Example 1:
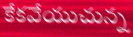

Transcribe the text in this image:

కేకవేయుచున్న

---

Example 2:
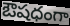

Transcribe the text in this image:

ఔషధంగా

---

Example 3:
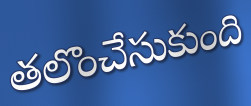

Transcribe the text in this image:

తలొంచేసుకుంది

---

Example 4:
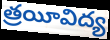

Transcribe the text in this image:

త్రయీవిద్య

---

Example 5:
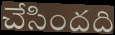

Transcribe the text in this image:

చేసిందది